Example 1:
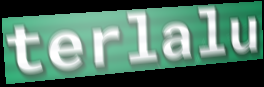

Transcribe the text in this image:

terlalu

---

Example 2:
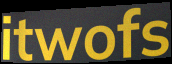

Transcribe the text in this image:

itwofs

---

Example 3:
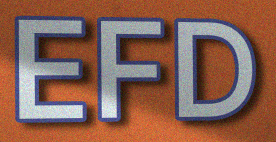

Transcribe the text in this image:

EFD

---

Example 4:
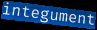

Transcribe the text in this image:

integument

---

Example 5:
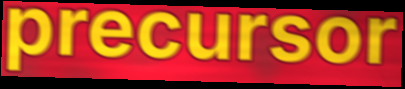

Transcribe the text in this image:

precursor